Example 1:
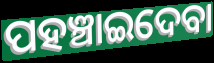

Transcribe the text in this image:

ପହଞ୍ଚାଇଦେବା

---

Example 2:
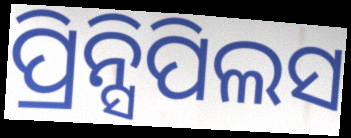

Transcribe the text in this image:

ପ୍ରିନ୍ସିପିଲସ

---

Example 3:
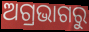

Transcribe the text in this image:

ଅଗ୍ରଭାଗରୁ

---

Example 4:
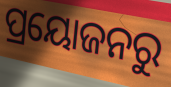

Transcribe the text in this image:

ପ୍ରୟୋଜନରୁ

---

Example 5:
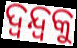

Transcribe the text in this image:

ଦ୍ୱନ୍ଦ୍ୱକୁ